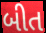
બીત